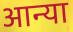
आन्या